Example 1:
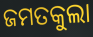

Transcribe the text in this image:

ଜମତକୁଲା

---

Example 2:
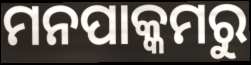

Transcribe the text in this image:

ମନପାକ୍କମରୁ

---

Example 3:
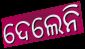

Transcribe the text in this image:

ଦେଲେନି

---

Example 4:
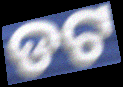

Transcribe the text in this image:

ଡଟ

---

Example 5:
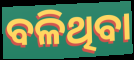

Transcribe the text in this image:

ବଳିଥିବା